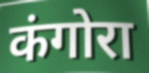
कंगोरा